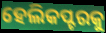
ହେଲିକପ୍ଟରକୁ